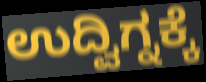
ಉದ್ವಿಗ್ನಕ್ಕೆ